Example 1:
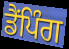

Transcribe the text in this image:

ਡੈਂਪਿੰਗ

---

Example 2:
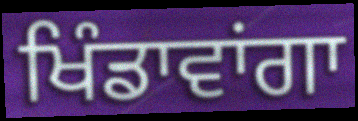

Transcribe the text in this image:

ਖਿੰਡਾਵਾਂਗਾ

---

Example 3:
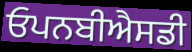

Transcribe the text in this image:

ਓਪਨਬੀਐਸਡੀ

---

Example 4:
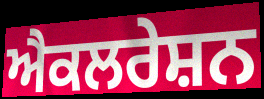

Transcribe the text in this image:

ਐਕਲਰੇਸ਼ਨ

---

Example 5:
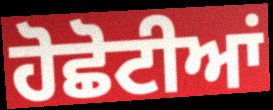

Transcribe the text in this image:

ਹੋਛੋਟੀਆਂ